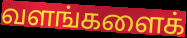
வளங்களைக்